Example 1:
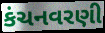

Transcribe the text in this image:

કંચનવરણી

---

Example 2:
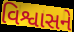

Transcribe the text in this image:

વિશ્વાસને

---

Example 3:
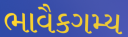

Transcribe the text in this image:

ભાવૈકગમ્ય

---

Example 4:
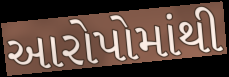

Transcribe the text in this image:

આરોપોમાંથી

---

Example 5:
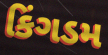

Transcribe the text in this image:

કિંગડમ